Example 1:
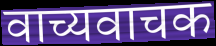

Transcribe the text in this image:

वाच्यवाचक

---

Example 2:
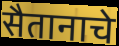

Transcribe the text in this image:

सैतानाचे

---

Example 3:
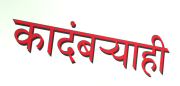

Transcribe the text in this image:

कादंबऱ्याही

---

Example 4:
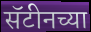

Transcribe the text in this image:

सॅटीनच्या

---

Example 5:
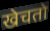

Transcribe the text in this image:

खेचतो